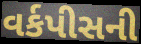
વર્કપીસની